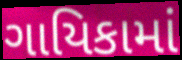
ગાયિકામાં